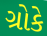
ગ્રોકે